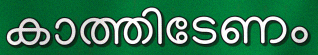
കാത്തിടേണം